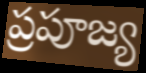
ప్రపూజ్య